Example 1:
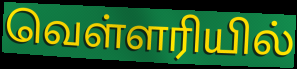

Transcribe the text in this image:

வெள்ளரியில்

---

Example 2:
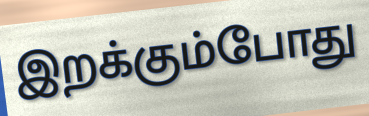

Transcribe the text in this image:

இறக்கும்போது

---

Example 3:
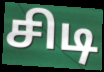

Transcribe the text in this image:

சிடி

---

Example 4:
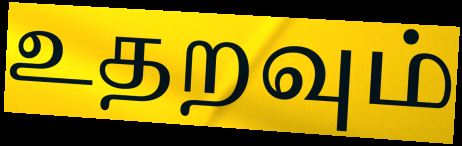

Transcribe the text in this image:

உதறவும்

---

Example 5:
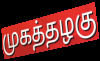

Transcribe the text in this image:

முகத்தழகு